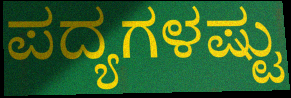
ಪದ್ಯಗಳಷ್ಟು